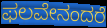
ಫಲವೇನಂದರೆ